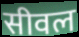
सीवल